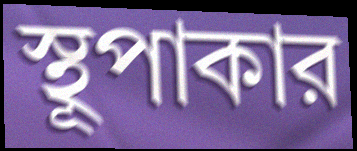
স্থূপাকার